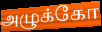
அழுக்கோ